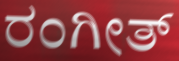
ರಂಗೀತ್